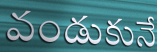
వండుకునే